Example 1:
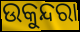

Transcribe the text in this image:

ଉକୁନ୍ଦରା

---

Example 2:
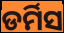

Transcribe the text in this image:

ଡର୍ମିସ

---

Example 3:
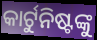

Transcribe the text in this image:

କାର୍ଟୁନିଷ୍ଟଙ୍କୁ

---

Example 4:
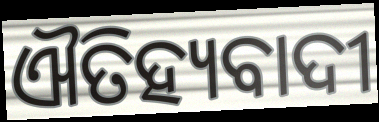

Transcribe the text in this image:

ଐତିହ୍ୟବାଦୀ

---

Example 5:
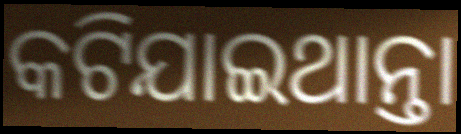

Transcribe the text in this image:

କଟିଯାଇଥାନ୍ତା